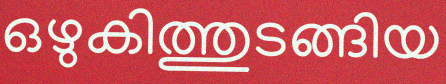
ഒഴുകിത്തുടങ്ങിയ